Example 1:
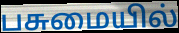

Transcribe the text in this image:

பசுமையில்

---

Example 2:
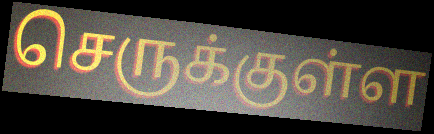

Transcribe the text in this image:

செருக்குள்ள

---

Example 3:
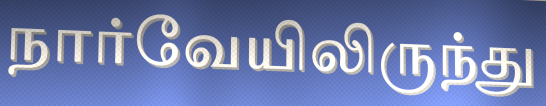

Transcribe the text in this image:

நார்வேயிலிருந்து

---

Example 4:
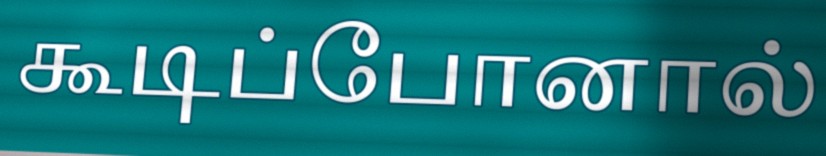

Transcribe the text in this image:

கூடிப்போனால்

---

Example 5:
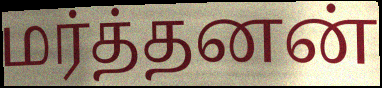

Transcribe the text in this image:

மர்த்தனன்